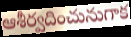
ఆశీర్వదించునుగాక